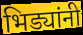
भिड्यांनी